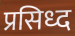
प्रसिध्द